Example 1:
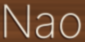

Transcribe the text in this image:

Nao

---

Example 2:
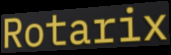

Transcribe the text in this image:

Rotarix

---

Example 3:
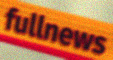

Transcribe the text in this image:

fullnews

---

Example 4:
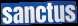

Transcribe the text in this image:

sanctus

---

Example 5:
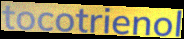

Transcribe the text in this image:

tocotrienol